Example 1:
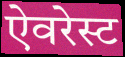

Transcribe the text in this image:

ऐवरेस्ट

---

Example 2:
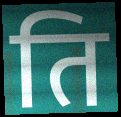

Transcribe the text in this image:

ति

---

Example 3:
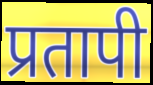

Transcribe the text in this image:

प्रतापी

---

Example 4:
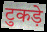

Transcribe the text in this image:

टुकड़े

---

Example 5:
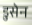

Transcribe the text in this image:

डुसेन